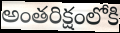
అంతరిక్షంలోకి